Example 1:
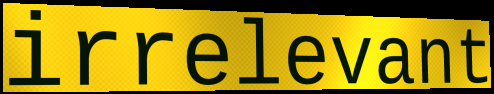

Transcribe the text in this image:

irrelevant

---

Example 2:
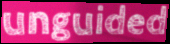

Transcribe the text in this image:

unguided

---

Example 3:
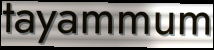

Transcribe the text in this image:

tayammum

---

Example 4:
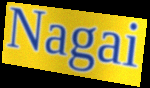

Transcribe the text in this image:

Nagai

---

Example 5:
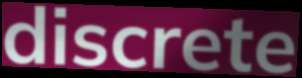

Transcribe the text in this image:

discrete